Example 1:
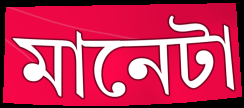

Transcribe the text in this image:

মানেটা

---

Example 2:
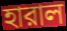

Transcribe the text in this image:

হারাল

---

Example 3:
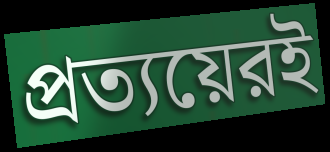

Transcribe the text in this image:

প্রত্যয়েরই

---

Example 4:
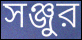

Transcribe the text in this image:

সঞ্জুর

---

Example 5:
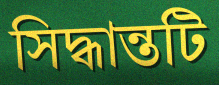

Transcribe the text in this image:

সিদ্ধান্তটি